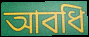
আবধি